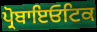
ਪ੍ਰੋਬਾਇਓਟਿਕ